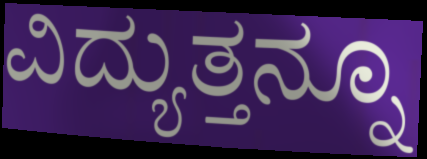
ವಿದ್ಯುತ್ತನ್ನೂ